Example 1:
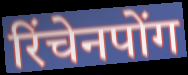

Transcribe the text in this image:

रिंचेनपोंग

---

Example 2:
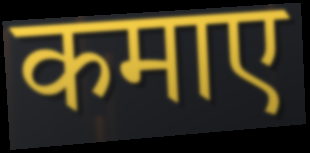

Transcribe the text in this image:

कमाए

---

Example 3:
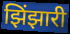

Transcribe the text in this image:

झिंझारी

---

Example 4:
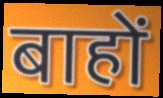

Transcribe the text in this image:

बाहों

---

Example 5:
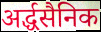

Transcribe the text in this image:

अर्द्धसैनिक